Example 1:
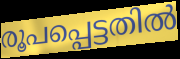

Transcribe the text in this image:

രൂപപ്പെട്ടതിൽ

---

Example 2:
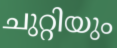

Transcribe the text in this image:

ചുറ്റിയും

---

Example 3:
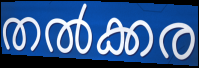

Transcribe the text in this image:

തൽക്കര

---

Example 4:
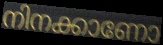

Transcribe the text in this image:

നിനക്കാണോ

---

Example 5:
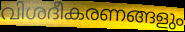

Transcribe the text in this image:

വിശദീകരണങ്ങളും